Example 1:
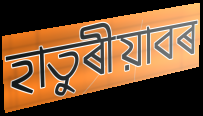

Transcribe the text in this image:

হাতুৰীয়াবৰ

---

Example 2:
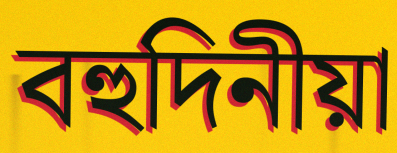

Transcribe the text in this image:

বহুদিনীয়া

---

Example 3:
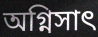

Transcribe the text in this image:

অগ্নিসাৎ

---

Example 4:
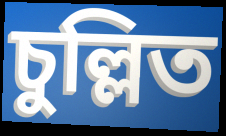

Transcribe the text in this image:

চুল্লিত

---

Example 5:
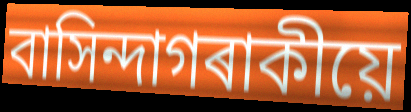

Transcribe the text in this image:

বাসিন্দাগৰাকীয়ে